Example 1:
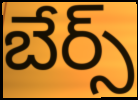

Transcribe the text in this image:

బేర్స్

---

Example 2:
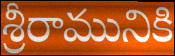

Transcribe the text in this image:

శ్రీరామునికి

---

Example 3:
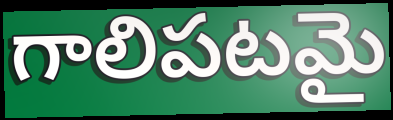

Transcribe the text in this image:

గాలిపటమై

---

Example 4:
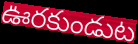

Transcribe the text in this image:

ఊరకుండుట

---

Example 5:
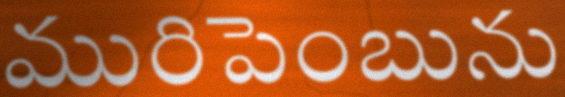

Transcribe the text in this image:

మురిపెంబును